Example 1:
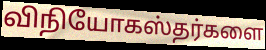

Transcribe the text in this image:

விநியோகஸ்தர்களை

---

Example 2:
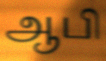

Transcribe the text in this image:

ஆபி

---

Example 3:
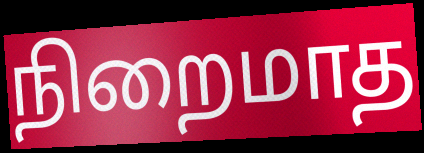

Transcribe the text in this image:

நிறைமாத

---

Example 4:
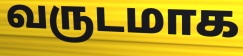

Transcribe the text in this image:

வருடமாக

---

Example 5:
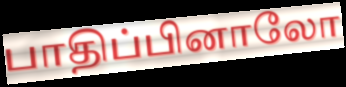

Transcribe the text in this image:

பாதிப்பினாலோ